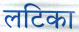
लटिका